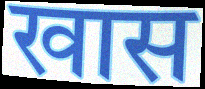
खास